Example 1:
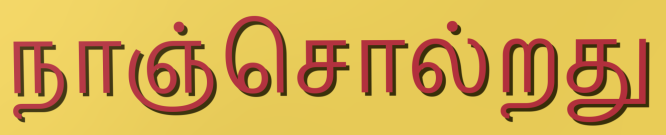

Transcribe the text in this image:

நாஞ்சொல்றது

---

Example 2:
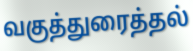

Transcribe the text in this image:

வகுத்துரைத்தல்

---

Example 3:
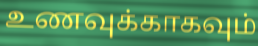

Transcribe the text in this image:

உணவுக்காகவும்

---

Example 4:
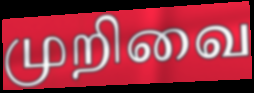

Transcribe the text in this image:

முறிவை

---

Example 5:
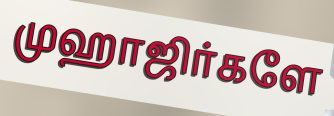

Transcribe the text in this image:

முஹாஜிர்களே